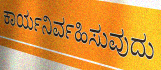
ಕಾರ್ಯನಿರ್ವಹಿಸುವುದು